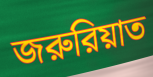
জরুরিয়াত